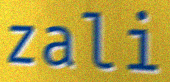
zali